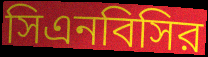
সিএনবিসির